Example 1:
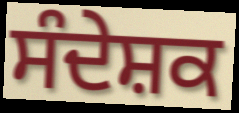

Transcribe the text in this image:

ਸੰਦੇਸ਼ਕ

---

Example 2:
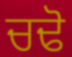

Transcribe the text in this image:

ਚਢੋ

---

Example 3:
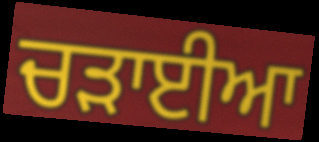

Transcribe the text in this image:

ਚੜਾਈਆ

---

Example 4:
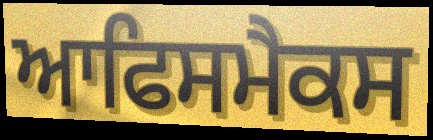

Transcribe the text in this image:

ਆਫਿਸਮੈਕਸ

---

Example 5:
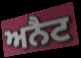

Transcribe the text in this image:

ਅਨੈਟ